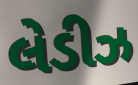
લેડીઝ